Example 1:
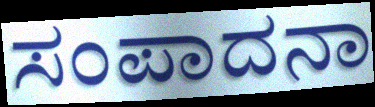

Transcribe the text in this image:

ಸಂಪಾದನಾ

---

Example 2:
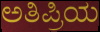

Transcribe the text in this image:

ಅತಿಪ್ರಿಯ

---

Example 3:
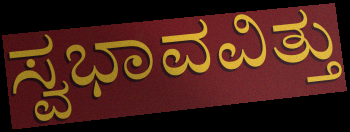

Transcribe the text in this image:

ಸ್ವಭಾವವಿತ್ತು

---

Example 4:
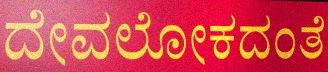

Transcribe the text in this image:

ದೇವಲೋಕದಂತೆ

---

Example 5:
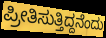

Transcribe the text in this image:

ಪ್ರೀತಿಸುತ್ತಿದ್ದನೆಂದು